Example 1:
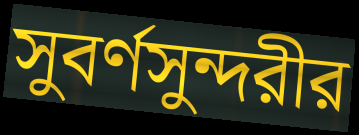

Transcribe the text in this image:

সুবর্ণসুন্দরীর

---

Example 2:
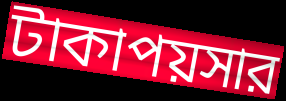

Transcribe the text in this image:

টাকাপয়সার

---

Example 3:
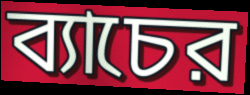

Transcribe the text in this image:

ব্যাচের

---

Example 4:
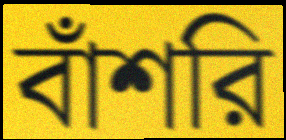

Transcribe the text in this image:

বাঁশরি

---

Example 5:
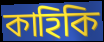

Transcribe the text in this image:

কাহিকি